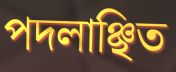
পদলাঞ্ছিত